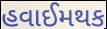
હવાઈમથક